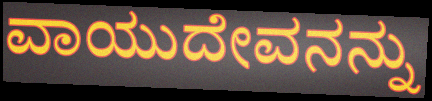
ವಾಯುದೇವನನ್ನು